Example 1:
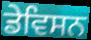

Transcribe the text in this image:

ਡੇਵਿਸਨ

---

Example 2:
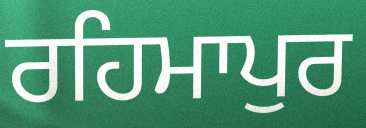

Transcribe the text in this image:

ਰਹਿਮਾਪੁਰ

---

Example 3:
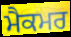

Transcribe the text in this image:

ਮੈਕਮਰ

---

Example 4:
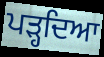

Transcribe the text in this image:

ਪੜ੍ਹਦਿਆ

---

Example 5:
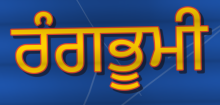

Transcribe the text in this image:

ਰੰਗਭੂਮੀ